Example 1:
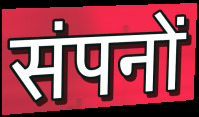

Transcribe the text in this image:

संपनों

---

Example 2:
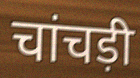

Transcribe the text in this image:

चांचड़ी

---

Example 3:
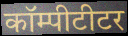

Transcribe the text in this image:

कॉम्पीटीटर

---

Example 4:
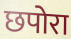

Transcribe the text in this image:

छपोरा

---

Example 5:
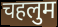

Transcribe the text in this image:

चहलुम